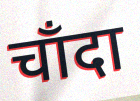
चाँदा